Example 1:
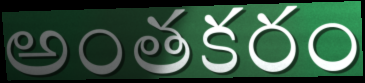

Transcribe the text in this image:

అంతకరం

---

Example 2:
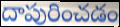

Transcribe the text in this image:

దాపురించడం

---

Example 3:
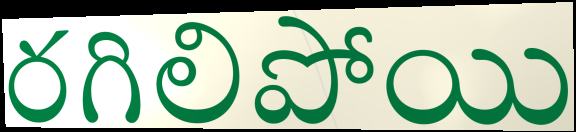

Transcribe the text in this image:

రగిలిపోయి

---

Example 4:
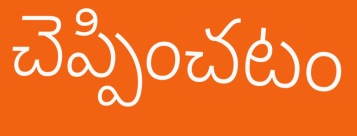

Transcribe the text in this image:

చెప్పించటం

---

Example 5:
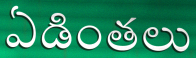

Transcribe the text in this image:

ఏడింతలు